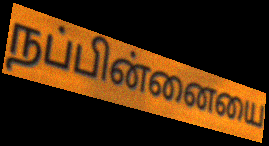
நப்பின்னையை